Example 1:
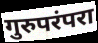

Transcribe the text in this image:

गुरुपरंपरा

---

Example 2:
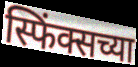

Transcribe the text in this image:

स्फिंक्सच्या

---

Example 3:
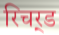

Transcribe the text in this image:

रिचर्ड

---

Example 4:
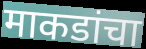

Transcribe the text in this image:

माकडांचा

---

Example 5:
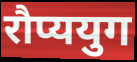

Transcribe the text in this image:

रौप्ययुग